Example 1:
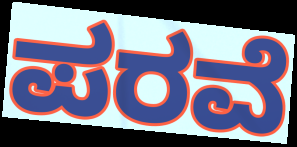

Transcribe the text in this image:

ಪರವೆ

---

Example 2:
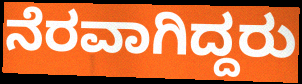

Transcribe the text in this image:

ನೆರವಾಗಿದ್ದರು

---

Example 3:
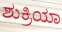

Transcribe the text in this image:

ಶುಕ್ರಿಯಾ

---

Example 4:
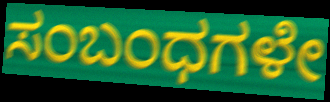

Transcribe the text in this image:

ಸಂಬಂಧಗಳೇ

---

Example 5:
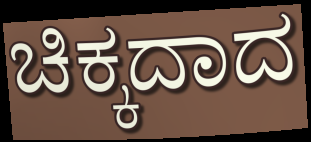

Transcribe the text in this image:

ಚಿಕ್ಕದಾದ